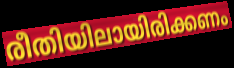
രീതിയിലായിരിക്കണം